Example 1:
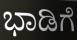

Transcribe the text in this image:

ಭಾಡಿಗೆ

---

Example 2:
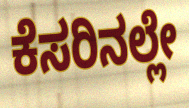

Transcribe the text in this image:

ಕೆಸರಿನಲ್ಲೇ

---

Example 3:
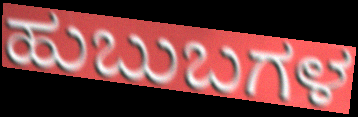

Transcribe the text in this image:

ಹುಬುಬಗಳ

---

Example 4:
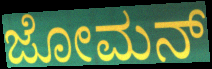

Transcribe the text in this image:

ಜೋಮನ್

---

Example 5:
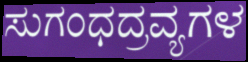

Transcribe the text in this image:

ಸುಗಂಧದ್ರವ್ಯಗಳ